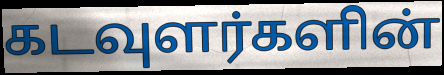
கடவுளர்களின்